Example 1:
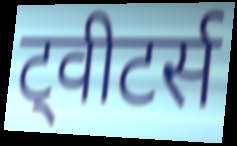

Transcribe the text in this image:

ट्वीटर्स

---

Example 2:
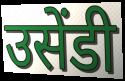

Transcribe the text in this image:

उसेंडी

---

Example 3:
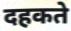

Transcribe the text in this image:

दहकते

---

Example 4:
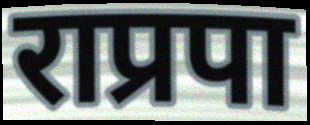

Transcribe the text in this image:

राप्रपा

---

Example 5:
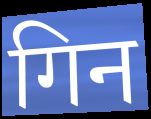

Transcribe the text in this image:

गिन